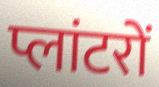
प्लांटरों